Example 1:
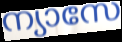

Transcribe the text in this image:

ന്യാസേ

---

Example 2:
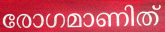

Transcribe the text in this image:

രോഗമാണിത്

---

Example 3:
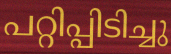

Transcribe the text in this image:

പറ്റിപ്പിടിച്ചു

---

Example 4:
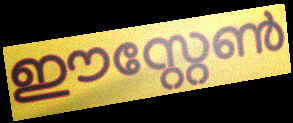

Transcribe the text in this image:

ഈസ്റ്റേൺ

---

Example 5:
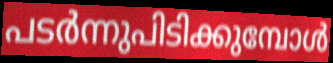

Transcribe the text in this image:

പടർന്നുപിടിക്കുമ്പോൾ